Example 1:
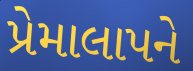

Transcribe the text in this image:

પ્રેમાલાપને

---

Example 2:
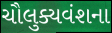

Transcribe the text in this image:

ચૌલુક્યવંશના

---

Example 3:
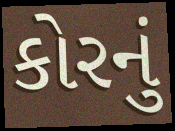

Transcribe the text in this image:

કોરનું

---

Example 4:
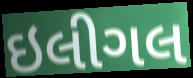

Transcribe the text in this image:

ઇલીગલ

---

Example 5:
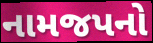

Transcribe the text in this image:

નામજપનો